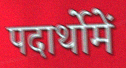
पदार्थोमें